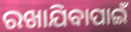
ରଖାଯିବାପାଇଁ